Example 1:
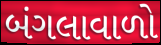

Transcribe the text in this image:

બંગલાવાળો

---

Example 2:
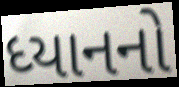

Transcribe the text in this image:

ધ્યાનનો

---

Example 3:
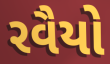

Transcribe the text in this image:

રવૈયો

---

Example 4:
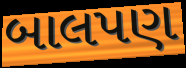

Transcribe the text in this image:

બાલપણ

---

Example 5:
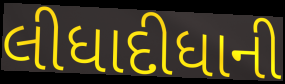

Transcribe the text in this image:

લીધાદીધાની